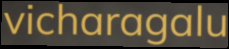
vicharagalu